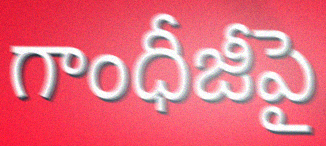
గాంధీజీపై